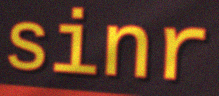
sinr